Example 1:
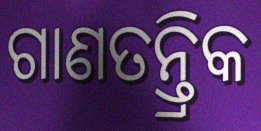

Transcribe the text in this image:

ଗାଣତନ୍ତ୍ରିକ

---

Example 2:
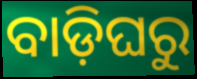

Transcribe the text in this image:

ବାଡ଼ିଘରୁ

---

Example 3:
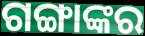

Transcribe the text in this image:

ଗଙ୍ଗାଙ୍କର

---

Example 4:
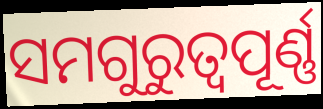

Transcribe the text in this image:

ସମଗୁରୁତ୍ଵପୂର୍ଣ୍ଣ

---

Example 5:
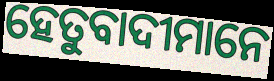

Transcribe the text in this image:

ହେତୁବାଦୀମାନେ